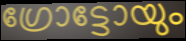
ഗ്രോട്ടോയും